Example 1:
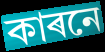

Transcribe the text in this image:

কাৰনে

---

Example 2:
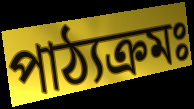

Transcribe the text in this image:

পাঠ্যক্ৰমঃ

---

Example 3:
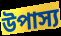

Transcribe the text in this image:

উপাস্য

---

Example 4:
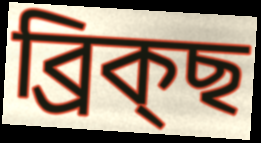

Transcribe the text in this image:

ব্ৰিক্‌ছ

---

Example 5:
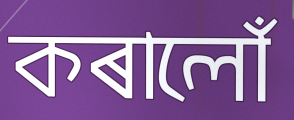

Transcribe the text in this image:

কৰালোঁ